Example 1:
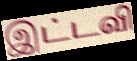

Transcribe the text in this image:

இட்டவி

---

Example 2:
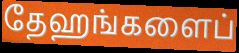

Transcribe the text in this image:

தேஹங்களைப்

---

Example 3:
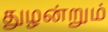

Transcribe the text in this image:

துழன்றும்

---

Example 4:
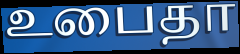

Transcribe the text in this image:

உபைதா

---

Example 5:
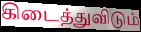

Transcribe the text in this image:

கிடைத்துவிடும்